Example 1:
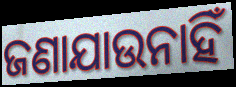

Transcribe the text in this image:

ଜଣାଯାଉନାହିଁ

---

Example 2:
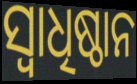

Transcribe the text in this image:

ସ୍ୱାଧିଷ୍ଠାନ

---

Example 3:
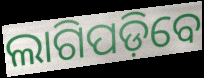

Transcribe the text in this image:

ଲାଗିପଡ଼ିବେ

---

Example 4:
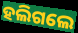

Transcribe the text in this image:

ହଲିଗଲେ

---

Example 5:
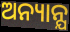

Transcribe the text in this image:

ଅନ୍ୟାନ୍ଯ